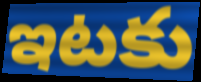
ఇటకు